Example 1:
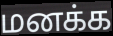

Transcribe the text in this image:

மனக்க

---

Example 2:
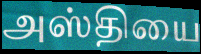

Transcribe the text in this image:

அஸ்தியை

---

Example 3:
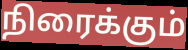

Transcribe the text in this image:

நிரைக்கும்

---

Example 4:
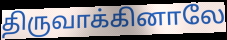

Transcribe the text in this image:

திருவாக்கினாலே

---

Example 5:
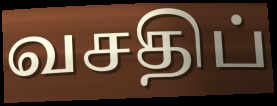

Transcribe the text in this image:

வசதிப்